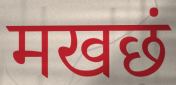
मखछं